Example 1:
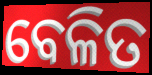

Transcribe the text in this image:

ବେଳିତ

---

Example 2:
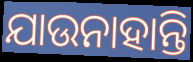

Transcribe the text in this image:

ଯାଉନାହାନ୍ତି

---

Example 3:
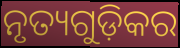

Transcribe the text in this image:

ନୃତ୍ୟଗୁଡ଼ିକର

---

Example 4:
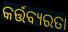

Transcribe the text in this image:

କର୍ତ୍ତବ୍ୟରତା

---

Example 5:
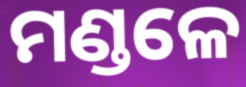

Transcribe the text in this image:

ମଣ୍ଡଳେ